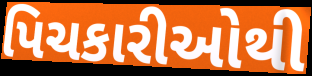
પિચકારીઓથી